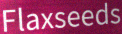
Flaxseeds